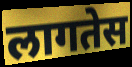
लागतेस